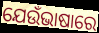
ଯେଉଁଭାଷାରେ